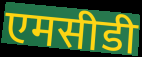
एमसीडी